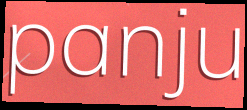
panju